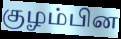
குழம்பின